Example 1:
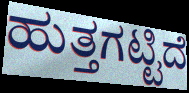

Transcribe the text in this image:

ಹುತ್ತಗಟ್ಟಿದೆ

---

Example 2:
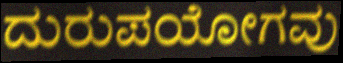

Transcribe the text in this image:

ದುರುಪಯೋಗವು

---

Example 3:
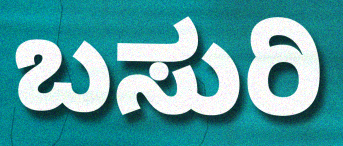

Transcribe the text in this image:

ಬಸುರಿ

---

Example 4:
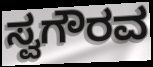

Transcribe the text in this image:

ಸ್ವಗೌರವ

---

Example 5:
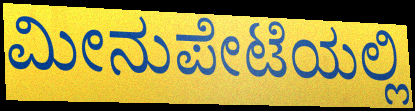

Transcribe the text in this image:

ಮೀನುಪೇಟೆಯಲ್ಲಿ